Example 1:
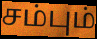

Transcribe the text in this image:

சம்பும்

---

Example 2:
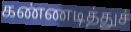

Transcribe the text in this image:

கண்ணடித்துச்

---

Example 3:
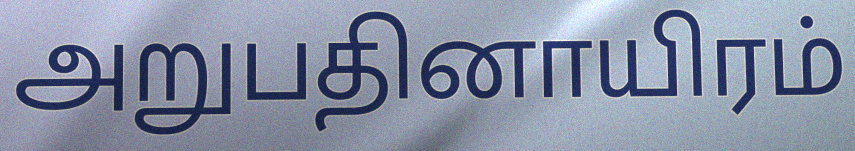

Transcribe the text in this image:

அறுபதினாயிரம்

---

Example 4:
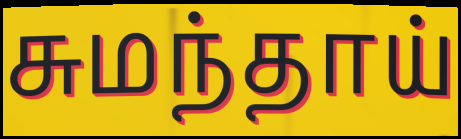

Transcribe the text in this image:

சுமந்தாய்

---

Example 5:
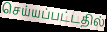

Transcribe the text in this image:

செய்யப்பட்டதில்